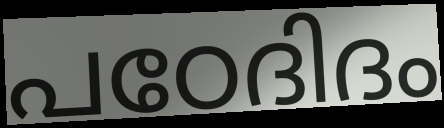
പഠേദിദം